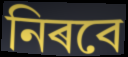
নিৰবে